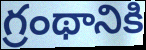
గ్రంథానికి